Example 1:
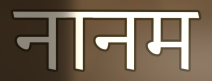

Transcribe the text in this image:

नानम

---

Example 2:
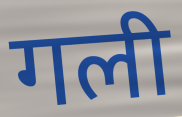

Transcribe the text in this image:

गली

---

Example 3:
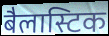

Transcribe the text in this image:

बैलास्टिक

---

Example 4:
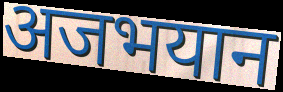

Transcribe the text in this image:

अजभयान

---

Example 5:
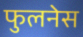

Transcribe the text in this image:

फुलनेस